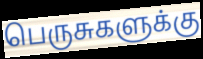
பெருசுகளுக்கு